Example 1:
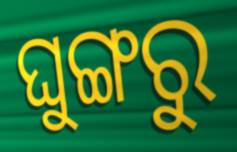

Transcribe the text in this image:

ଘୁଙ୍ଗରୁ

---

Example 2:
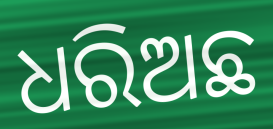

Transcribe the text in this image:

ଧରିଅଛ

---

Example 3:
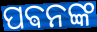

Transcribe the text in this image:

ପଵନଙ୍କ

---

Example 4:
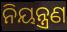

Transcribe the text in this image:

ନିୟନ୍ତ୍ରଣ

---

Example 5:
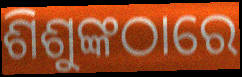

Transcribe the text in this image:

ଶିଶୁଙ୍କଠାରେ